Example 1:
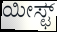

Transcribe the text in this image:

ಯೀಸ್ಟ್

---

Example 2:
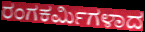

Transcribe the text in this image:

ರಂಗಕರ್ಮಿಗಳಾದ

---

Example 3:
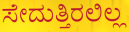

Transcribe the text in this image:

ಸೇದುತ್ತಿರಲಿಲ್ಲ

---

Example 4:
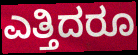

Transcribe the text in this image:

ಎತ್ತಿದರೂ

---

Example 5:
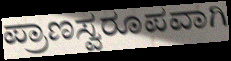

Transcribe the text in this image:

ಪ್ರಾಣಸ್ವರೂಪವಾಗಿ